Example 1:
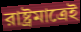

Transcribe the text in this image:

রাষ্ট্রমাত্রেই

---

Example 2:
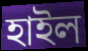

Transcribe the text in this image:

হাইল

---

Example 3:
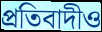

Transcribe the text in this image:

প্রতিবাদীও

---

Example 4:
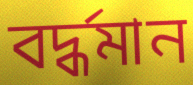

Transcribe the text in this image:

বর্দ্ধমান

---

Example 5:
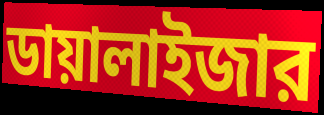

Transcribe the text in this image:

ডায়ালাইজার